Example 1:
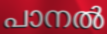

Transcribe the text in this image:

പാനൽ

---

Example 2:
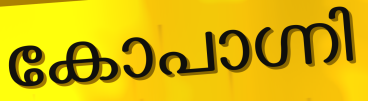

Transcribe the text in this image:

കോപാഗ്നി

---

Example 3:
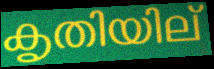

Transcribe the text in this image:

കൃതിയില്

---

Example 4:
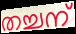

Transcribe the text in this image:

തച്ചന്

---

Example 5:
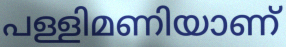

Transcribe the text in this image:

പള്ളിമണിയാണ്